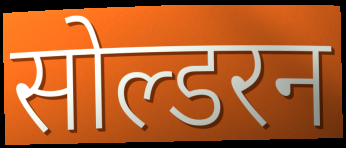
सोल्डरन